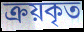
ক্রয়কৃত